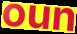
oun